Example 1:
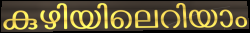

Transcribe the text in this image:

കുഴിയിലെറിയാം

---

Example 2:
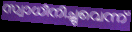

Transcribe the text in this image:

സ്വാധീനിച്ചുവെന്ന്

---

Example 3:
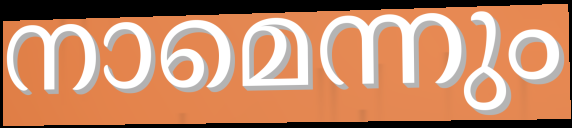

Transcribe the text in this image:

നാമെന്നും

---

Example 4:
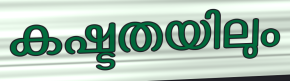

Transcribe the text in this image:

കഷ്ടതയിലും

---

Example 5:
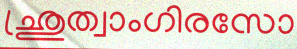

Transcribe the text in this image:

ഛ്രുത്വാംഗിരസോ